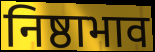
निष्ठाभाव